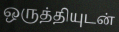
ஒருத்தியுடன்